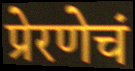
प्रेरणेचं